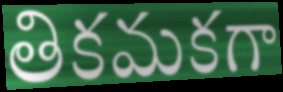
తికమకగా